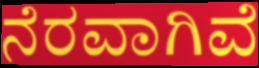
ನೆರವಾಗಿವೆ